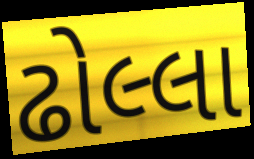
ઢોલ્લા